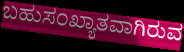
ಬಹುಸಂಖ್ಯಾತವಾಗಿರುವ